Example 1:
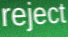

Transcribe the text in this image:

reject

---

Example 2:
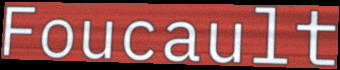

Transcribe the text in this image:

Foucault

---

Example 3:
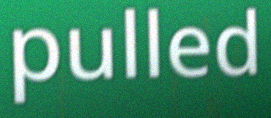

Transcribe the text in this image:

pulled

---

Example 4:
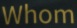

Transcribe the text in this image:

Whom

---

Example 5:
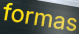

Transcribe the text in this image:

formas